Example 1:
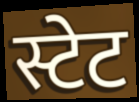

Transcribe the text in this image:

स्टेट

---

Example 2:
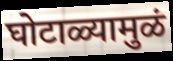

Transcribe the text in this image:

घोटाळ्यामुळं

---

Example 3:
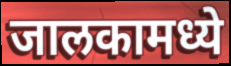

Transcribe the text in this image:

जालकामध्ये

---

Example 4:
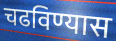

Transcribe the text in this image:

चढविण्यास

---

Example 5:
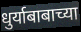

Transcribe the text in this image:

धुर्याबाबाच्या